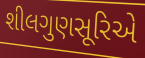
શીલગુણસૂરિએ